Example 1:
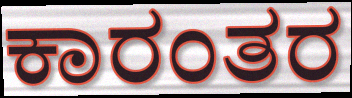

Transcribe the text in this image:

ಕಾರಂತರ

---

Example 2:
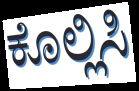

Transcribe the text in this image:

ಕೊಲ್ಲಿಸಿ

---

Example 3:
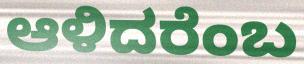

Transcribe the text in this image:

ಆಳಿದರೆಂಬ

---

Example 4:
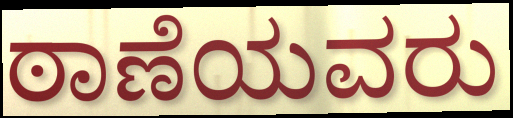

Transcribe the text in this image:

ಠಾಣೆಯವರು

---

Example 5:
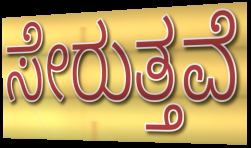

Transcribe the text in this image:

ಸೇರುತ್ತವೆ